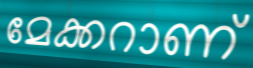
മേക്കറാണ്